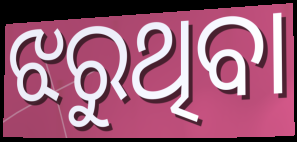
ଝରୁଥିବା